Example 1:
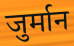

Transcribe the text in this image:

जुर्मान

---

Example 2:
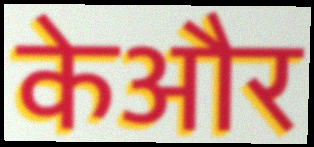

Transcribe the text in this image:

केऔर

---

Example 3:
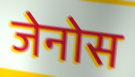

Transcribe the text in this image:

जेनोस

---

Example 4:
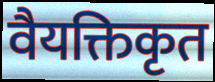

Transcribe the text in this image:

वैयक्तिकृत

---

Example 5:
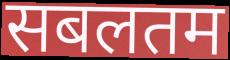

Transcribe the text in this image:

सबलतम